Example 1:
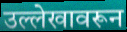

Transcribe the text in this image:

उल्लेखावरून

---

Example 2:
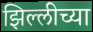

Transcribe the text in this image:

झिल्लीच्या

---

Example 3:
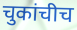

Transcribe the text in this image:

चुकांचीच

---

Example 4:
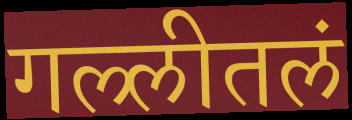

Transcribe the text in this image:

गल्लीतलं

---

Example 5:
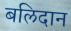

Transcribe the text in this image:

बलिदान